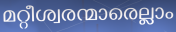
മറ്റീശ്വരന്മാരെല്ലാം